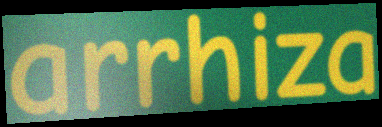
arrhiza